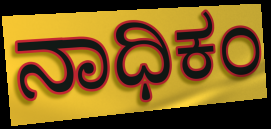
ನಾಧಿಕಂ